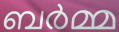
ബർമ്മ